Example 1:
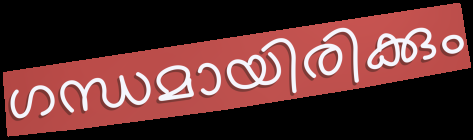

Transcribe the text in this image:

ഗന്ധമായിരിക്കും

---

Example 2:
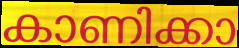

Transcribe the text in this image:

കാണിക്കാ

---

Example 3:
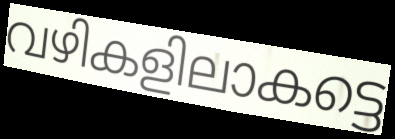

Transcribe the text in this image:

വഴികളിലാകട്ടെ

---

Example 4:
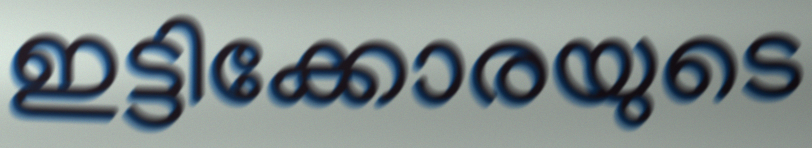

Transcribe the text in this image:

ഇട്ടിക്കോരയുടെ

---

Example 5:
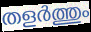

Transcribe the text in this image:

തളർത്തും